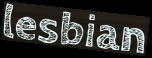
lesbian